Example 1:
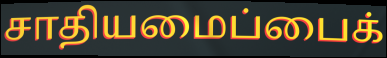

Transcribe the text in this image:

சாதியமைப்பைக்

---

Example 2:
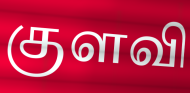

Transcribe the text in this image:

குளவி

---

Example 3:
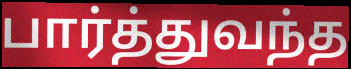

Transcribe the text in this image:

பார்த்துவந்த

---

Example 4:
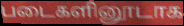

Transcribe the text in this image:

படைகளினூடாக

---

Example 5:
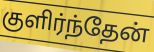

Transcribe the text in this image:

குளிர்ந்தேன்